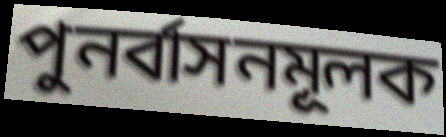
পুনর্বাসনমূলক